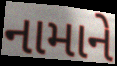
નામાને